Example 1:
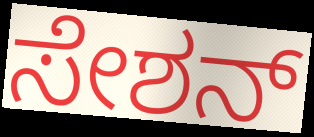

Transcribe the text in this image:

ಸೇಶನ್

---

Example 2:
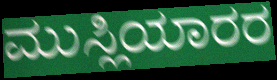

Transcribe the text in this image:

ಮುಸ್ಲಿಯಾರರ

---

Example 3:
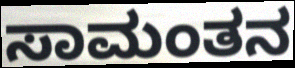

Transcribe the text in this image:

ಸಾಮಂತನ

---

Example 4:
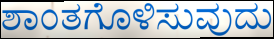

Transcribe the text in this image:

ಶಾಂತಗೊಳಿಸುವುದು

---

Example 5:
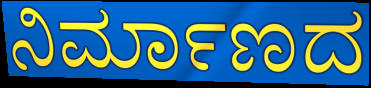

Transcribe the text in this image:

ನಿರ್ಮಾಣದ